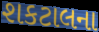
શકટાલના